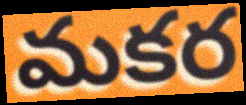
మకర